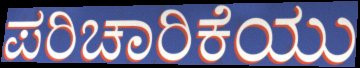
ಪರಿಚಾರಿಕೆಯು